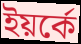
ইয়র্কে